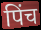
पिंच